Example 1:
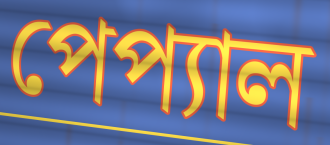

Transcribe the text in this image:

পেপ্যাল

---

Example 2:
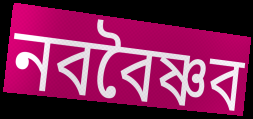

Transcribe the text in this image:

নববৈষ্ণব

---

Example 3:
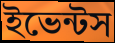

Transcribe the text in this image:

ইভেন্টস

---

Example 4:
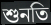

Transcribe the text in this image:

শুনতি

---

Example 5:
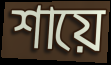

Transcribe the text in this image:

শায়ে